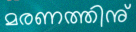
മരണത്തിനു്